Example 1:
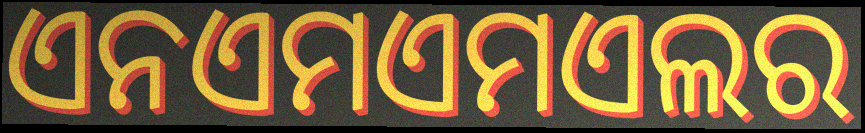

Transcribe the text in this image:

ଏନଏମଏମଏଲର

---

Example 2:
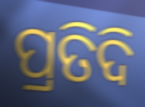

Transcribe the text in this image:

ପ୍ରତିଦି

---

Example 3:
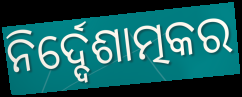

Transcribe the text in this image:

ନିର୍ଦ୍ଦେଶାତ୍ମକର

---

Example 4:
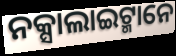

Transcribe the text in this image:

ନକ୍ସାଲାଇଟ୍ମାନେ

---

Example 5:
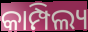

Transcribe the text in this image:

କାମ୍ପିଲ୍ୟ